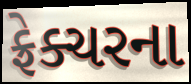
ફ્રેક્ચરના